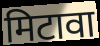
मिटावा